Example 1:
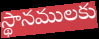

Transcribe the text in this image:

స్థానములకు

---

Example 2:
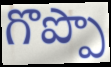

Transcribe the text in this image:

గొప్పొ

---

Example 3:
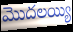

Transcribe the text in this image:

మొదలయ్యి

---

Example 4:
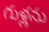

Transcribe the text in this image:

గుళ్లను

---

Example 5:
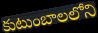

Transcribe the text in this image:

కుటుంబాలలోని